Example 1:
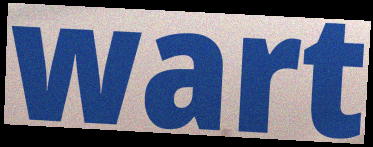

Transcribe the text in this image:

wart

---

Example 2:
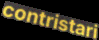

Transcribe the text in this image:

contristari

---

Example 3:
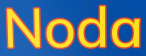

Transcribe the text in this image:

Noda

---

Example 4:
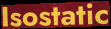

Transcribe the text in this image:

Isostatic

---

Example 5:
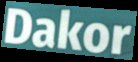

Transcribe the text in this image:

Dakor